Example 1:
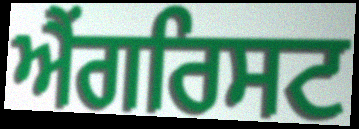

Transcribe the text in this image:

ਐਂਗਰਿਸਟ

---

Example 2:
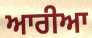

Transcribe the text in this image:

ਆਰੀਆ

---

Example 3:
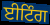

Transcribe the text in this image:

ਈਟਿੰਗ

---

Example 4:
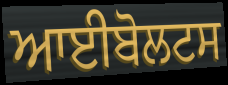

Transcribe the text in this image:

ਆਈਬੋਲਟਸ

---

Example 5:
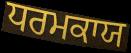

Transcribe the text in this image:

ਧਰਮਕਾਯ